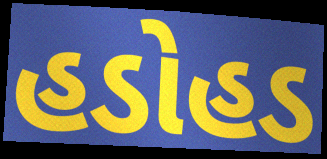
હડોહડ